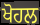
ਖੋਹਲ